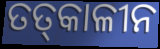
ତତ୍‍କାଳୀନ